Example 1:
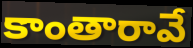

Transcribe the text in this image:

కాంతారావే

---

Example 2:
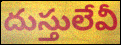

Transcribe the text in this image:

దుస్తులేవీ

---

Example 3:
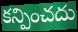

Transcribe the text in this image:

కన్పించదు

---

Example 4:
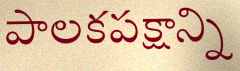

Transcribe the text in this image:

పాలకపక్షాన్ని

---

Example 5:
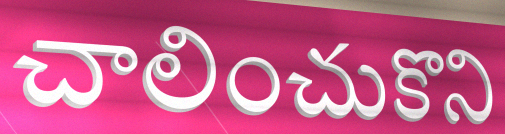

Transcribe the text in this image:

చాలించుకొని